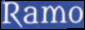
Ramo